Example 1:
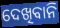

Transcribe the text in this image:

ଦେଖିବାନି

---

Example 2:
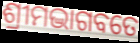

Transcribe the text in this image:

ଶ୍ରୀମଦ୍ଭାଗବତେ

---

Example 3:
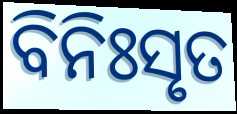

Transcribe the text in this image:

ବିନିଃସୃତ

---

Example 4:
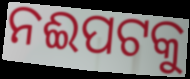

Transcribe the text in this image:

ନଈପଟକୁ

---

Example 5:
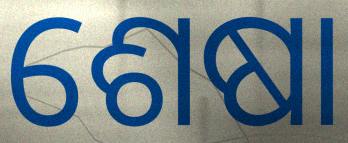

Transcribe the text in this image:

ଶେଷା